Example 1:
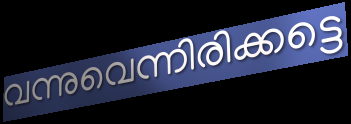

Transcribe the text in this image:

വന്നുവെന്നിരിക്കട്ടെ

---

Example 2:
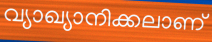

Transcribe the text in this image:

വ്യാഖ്യാനിക്കലാണ്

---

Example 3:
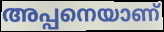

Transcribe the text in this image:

അപ്പനെയാണ്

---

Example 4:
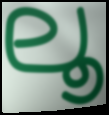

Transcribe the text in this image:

ലൂ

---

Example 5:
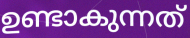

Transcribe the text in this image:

ഉണ്ടാകുന്നത്